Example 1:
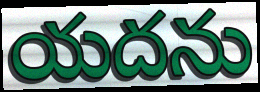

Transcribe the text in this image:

యదను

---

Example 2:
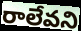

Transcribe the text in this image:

రాలేవని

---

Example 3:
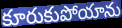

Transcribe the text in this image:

కూరుకుపోయాను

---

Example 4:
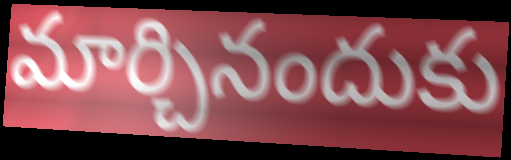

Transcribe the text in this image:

మార్చినందుకు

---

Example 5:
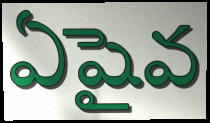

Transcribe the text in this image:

ఏషైవ